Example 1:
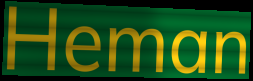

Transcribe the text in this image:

Heman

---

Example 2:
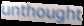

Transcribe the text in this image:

unthought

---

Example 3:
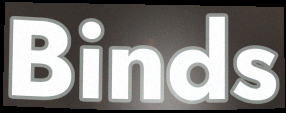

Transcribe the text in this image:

Binds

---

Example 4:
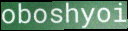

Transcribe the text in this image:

oboshyoi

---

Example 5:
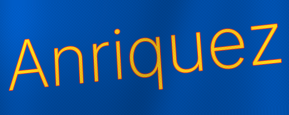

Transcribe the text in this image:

Anriquez